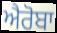
ਐਰੋਬਾ